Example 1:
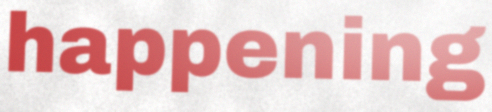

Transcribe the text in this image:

happening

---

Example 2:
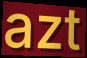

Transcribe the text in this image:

azt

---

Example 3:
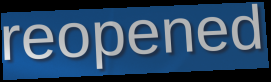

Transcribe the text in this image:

reopened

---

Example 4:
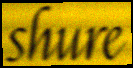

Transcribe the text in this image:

shure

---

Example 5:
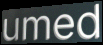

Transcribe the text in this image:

umed